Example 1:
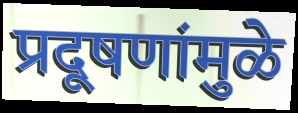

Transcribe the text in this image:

प्रदूषणांमुळे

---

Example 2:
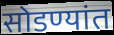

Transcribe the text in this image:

सोडण्यांत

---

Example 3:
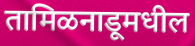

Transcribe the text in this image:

तामिळनाडूमधील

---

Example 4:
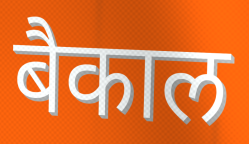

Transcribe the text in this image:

बैकाल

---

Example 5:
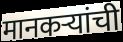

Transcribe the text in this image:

मानकऱ्यांची